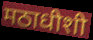
मठाधीशी